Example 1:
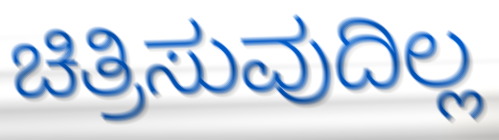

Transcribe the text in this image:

ಚಿತ್ರಿಸುವುದಿಲ್ಲ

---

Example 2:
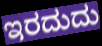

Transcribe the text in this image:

ಇರದುದು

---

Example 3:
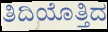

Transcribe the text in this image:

ತಿದಿಯೊತ್ತಿದ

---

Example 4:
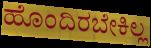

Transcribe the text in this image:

ಹೊಂದಿರಬೇಕಿಲ್ಲ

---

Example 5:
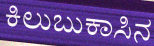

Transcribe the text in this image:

ಕಿಲುಬುಕಾಸಿನ